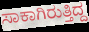
ಸಾಕಾಗಿರುತ್ತಿದ್ದ